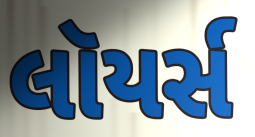
લૉયર્સ